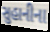
સુહાનીના